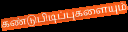
கண்டுபிடிப்புகளையும்